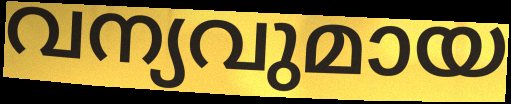
വന്യവുമായ